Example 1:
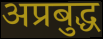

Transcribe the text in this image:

अप्रबुद्ध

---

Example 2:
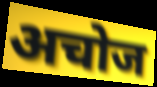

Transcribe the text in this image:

अचोज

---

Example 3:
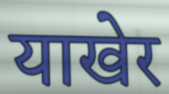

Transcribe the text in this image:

याखेर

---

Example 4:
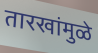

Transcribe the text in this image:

तारखांमुळे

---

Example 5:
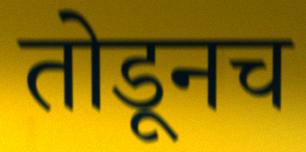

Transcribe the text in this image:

तोडूनच